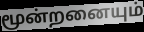
மூன்றனையும்